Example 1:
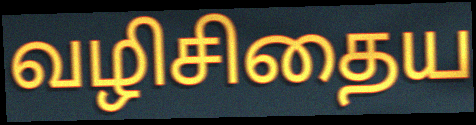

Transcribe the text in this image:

வழிசிதைய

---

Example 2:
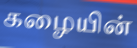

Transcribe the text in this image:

கழையின்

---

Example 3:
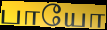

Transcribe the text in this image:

பாயோ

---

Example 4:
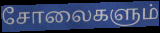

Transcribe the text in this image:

சோலைகளும்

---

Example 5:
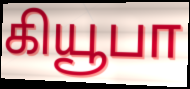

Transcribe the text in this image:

கியூபா